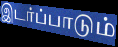
இடர்ப்பாடும்